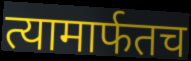
त्यामार्फतच